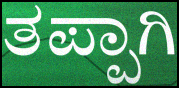
ತಪ್ಪಾಗಿ